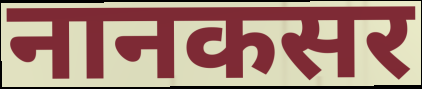
नानकसर